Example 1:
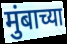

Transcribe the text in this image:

मुंबाच्या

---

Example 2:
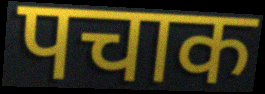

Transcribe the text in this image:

पचाक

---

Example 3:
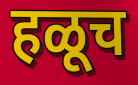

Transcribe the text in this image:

हळूच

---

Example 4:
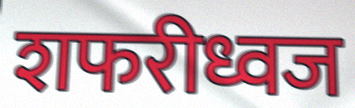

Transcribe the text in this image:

शफरीध्वज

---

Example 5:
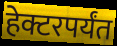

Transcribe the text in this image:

हेक्टरपर्यंत